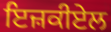
ਇਜ਼ਕੀਏਲ